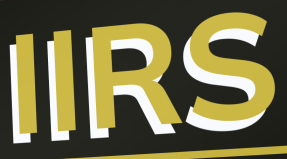
IIRS